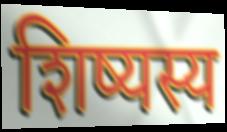
शिष्यस्य